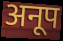
अनूप